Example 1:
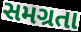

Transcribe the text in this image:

સમગ્રતા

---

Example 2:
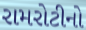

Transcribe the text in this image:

રામરોટીનો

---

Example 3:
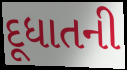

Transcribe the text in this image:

દૂધાતની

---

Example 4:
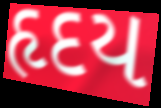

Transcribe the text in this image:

હૃદય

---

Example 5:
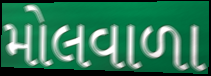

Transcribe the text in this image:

મોલવાળા